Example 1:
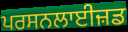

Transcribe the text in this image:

ਪਰਸਨਲਾਈਜ਼ਡ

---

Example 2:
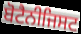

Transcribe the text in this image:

ਬੋਟੈਨੀਜਿਸਟ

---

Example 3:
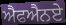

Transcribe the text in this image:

ਐਫਐਨਏ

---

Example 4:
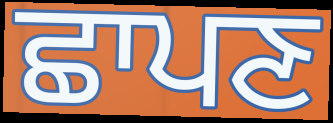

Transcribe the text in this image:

ਛਾਪਣ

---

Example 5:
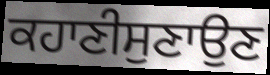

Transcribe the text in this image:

ਕਹਾਣੀਸੁਣਾਉਣ